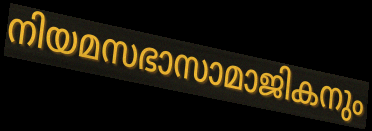
നിയമസഭാസാമാജികനും